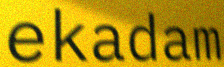
ekadam